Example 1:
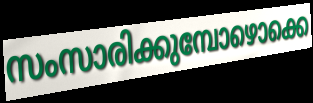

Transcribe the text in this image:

സംസാരിക്കുമ്പോഴൊക്കെ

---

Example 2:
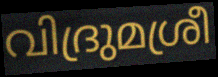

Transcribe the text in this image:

വിദ്രുമശ്രീ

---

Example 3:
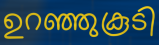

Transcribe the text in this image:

ഉറഞ്ഞുകൂടി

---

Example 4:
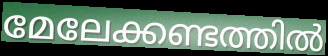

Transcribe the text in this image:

മേലേക്കണ്ടത്തിൽ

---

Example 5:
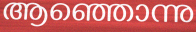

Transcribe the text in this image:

ആഞ്ഞൊന്നു